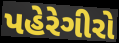
પહેરેગીરો